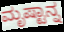
ಮೃಷ್ಟಾನ್ನ